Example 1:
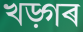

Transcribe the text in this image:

খড়্গৰ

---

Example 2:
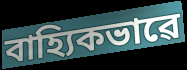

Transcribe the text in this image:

বাহ্যিকভাৱে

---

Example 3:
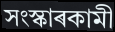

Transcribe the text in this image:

সংস্কাৰকামী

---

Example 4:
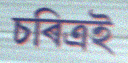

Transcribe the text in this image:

চৰিত্ৰই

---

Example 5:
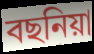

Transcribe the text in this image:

বছনিয়া